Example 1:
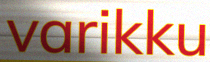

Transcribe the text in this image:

varikku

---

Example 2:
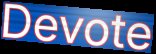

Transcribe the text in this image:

Devote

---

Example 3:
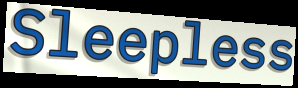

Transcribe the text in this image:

Sleepless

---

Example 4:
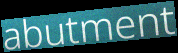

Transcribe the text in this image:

abutment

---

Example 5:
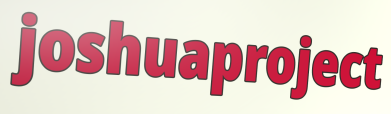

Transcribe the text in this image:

joshuaproject